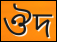
ঔদ